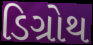
ડિગ્રોથ